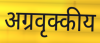
अग्रवृक्कीय